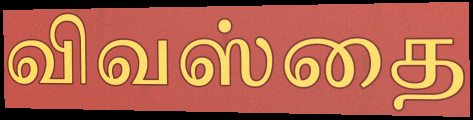
விவஸ்தை